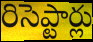
రిసెప్టార్లు